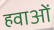
हवाओं